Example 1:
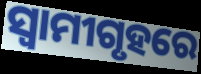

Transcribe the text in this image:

ସ୍ଵାମୀଗୃହରେ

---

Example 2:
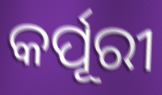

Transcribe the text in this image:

କର୍ପୂରୀ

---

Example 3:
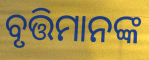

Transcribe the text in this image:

ବୃତ୍ତିମାନଙ୍କ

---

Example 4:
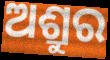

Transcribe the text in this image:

ଅଶ୍ରୁର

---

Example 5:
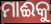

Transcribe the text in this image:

ମାଈକୁ